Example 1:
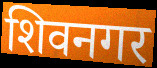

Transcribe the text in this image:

शिवनगर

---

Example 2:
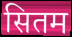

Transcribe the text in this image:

सितम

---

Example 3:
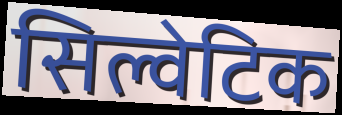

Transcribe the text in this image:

सिल्वेटिक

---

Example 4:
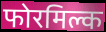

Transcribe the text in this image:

फोरमिल्क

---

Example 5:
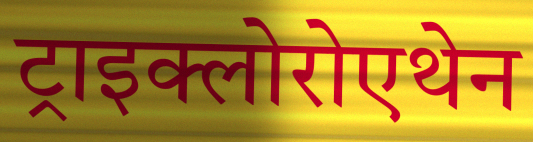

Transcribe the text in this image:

ट्राइक्लोरोएथेन